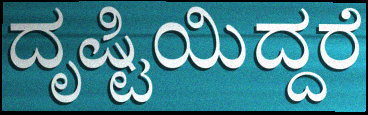
ದೃಷ್ಟಿಯಿದ್ದರೆ